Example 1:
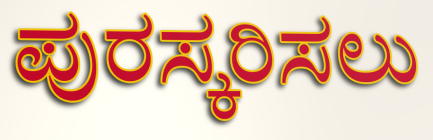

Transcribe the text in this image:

ಪುರಸ್ಕರಿಸಲು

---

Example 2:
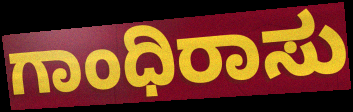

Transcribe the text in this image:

ಗಾಂಧಿರಾಸು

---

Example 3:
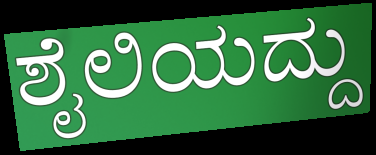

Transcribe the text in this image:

ಶೈಲಿಯದ್ದು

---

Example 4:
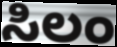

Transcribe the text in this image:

ಸಿಲಂ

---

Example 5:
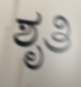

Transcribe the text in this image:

ಶೃತಿ